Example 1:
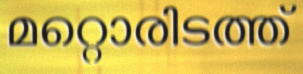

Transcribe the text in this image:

മറ്റൊരിടത്ത്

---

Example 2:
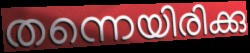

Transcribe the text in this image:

തന്നെയിരിക്കു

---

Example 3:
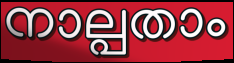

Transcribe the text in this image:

നാല്പതാം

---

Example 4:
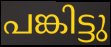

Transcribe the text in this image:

പങ്കിട്ടു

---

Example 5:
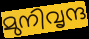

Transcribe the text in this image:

മുനിവൃന്ദ